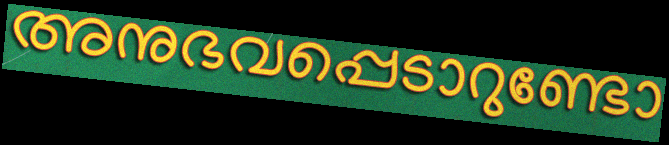
അനുഭവപ്പെടാറുണ്ടോ